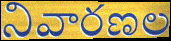
నివారణల